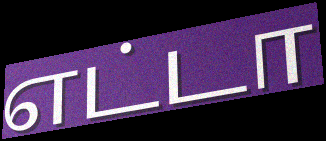
எட்டா